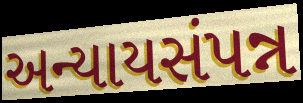
અન્યાયસંપન્ન